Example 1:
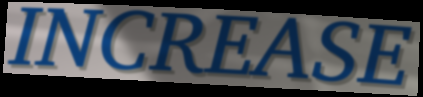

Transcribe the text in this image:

INCREASE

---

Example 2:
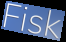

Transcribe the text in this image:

Fisk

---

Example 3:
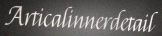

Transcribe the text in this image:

Articalinnerdetail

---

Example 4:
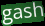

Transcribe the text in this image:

gash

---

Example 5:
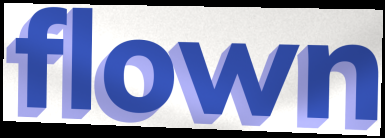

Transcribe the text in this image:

flown